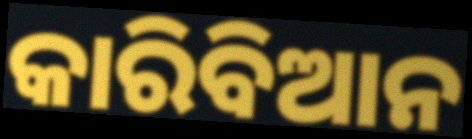
କାରିବିଆନ